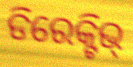
ଡିରେକ୍ଟିଭ୍